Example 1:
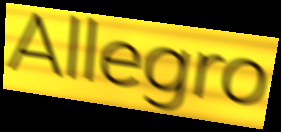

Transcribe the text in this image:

Allegro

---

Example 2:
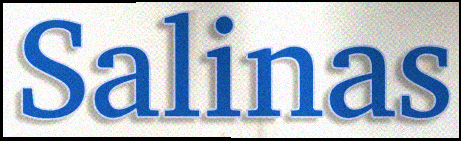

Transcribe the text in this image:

Salinas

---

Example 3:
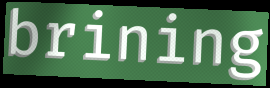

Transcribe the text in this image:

brining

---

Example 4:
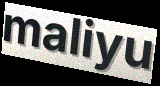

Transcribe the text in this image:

maliyu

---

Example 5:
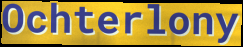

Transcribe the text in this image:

Ochterlony